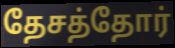
தேசத்தோர்